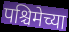
पश्चिमेच्या